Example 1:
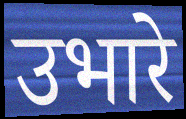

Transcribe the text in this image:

उभारे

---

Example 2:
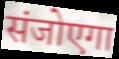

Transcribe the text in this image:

संजोएगा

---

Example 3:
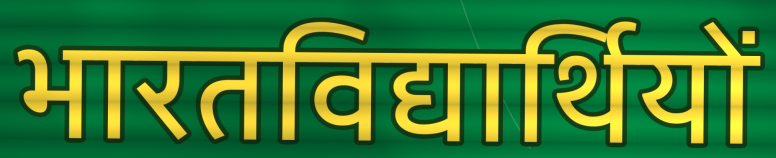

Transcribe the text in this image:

भारतविद्यार्थियों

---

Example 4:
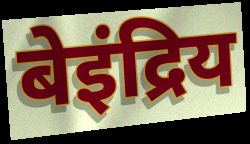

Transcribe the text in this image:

बेइंद्रिय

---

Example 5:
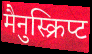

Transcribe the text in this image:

मैनुस्क्रिप्ट